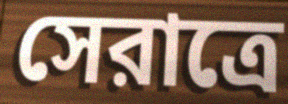
সেরাত্রে